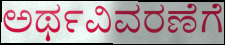
ಅರ್ಥವಿವರಣೆಗೆ